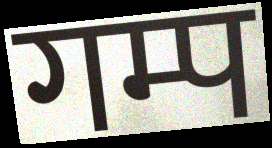
गम्प